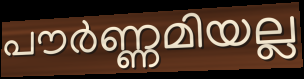
പൗർണ്ണമിയല്ല